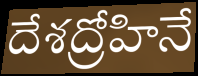
దేశద్రోహినే